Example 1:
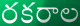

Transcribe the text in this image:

రకరాల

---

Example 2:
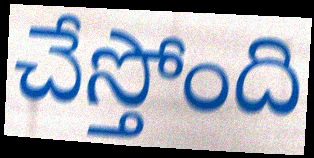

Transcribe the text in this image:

చేస్తోంది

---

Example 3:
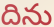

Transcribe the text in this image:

దిను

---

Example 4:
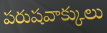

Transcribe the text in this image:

పరుషవాక్కులు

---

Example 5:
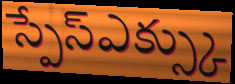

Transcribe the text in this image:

స్పేస్ఎక్స్కు